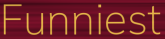
Funniest